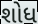
શોધ